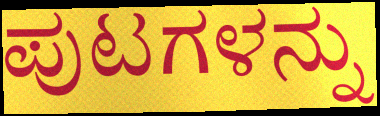
ಪುಟಗಳನ್ನು